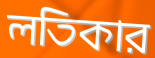
লতিকার